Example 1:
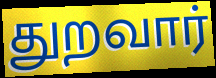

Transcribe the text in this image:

துறவார்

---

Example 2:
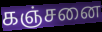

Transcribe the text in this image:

கஞ்சனை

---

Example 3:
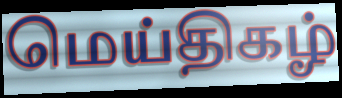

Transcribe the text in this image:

மெய்திகழ்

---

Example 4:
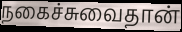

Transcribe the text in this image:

நகைச்சுவைதான்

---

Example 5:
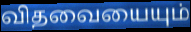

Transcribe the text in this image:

விதவையையும்